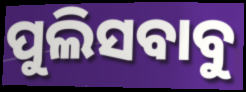
ପୁଲିସବାବୁ